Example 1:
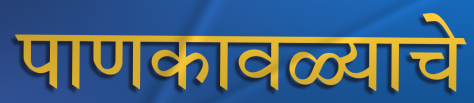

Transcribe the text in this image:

पाणकावळ्याचे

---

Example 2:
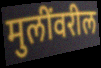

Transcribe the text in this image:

मुलींवरील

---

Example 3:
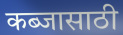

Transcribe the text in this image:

कब्जासाठी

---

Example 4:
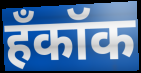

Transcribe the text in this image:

हँकॉक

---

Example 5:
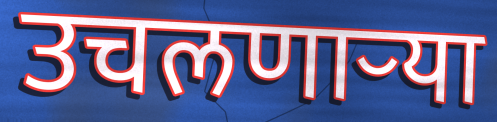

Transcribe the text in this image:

उचलणाऱ्या